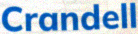
Crandell